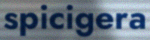
spicigera